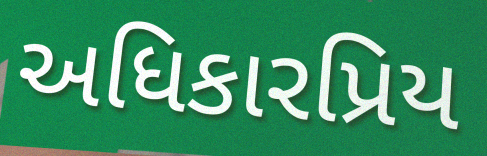
અધિકારપ્રિય